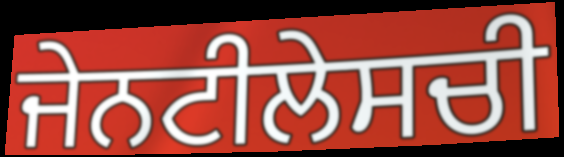
ਜੇਨਟੀਲੇਸਚੀ